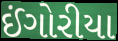
ઈંગોરીયા